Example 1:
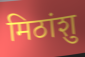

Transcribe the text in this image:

मिठांशु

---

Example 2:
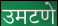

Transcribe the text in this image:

उमटणे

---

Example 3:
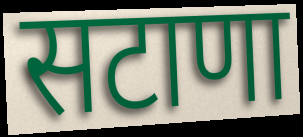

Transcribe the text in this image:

सटाणा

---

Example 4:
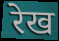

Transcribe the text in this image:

रेख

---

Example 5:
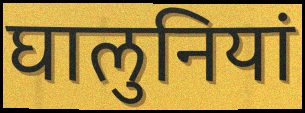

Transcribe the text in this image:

घालुनियां